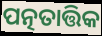
ପତ୍ନତାତ୍ତିକ